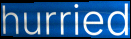
hurried